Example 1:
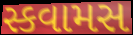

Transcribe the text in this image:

સ્કવામસ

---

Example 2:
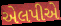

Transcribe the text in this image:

એલપીએ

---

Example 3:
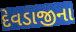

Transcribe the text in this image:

દેવડાજીના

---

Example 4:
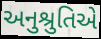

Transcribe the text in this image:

અનુશ્રુતિએ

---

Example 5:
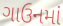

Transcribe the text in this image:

ગાઉનમાં